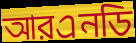
আরএনডি